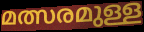
മത്സരമുള്ള